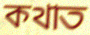
কথাত